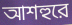
আশহুরে